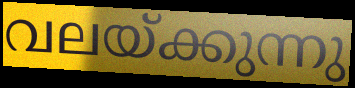
വലയ്ക്കുന്നു